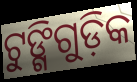
ଟୁଙ୍ଗିଗୁଡ଼ିକ